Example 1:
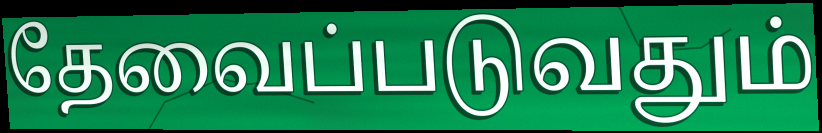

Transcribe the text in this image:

தேவைப்படுவதும்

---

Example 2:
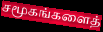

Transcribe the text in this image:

சமூகங்களைத்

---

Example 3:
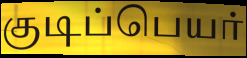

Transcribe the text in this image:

குடிப்பெயர்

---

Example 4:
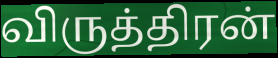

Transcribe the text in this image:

விருத்திரன்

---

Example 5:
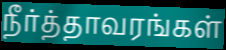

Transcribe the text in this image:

நீர்த்தாவரங்கள்